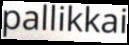
pallikkai